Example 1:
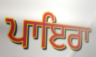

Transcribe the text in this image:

ਪਾਇਰਾ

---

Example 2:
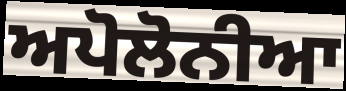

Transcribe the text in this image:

ਅਪੋਲੋਨੀਆ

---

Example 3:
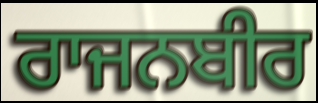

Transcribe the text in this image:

ਰਾਜਨਬੀਰ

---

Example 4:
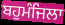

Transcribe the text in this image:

ਬਹੁਮੰਜਿਲਾ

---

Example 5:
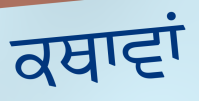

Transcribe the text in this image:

ਕਥਾਵਾਂ